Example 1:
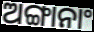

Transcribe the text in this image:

ଅଙ୍ଗାନାଂ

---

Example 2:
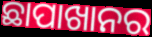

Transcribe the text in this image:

ଛାପାଖାନର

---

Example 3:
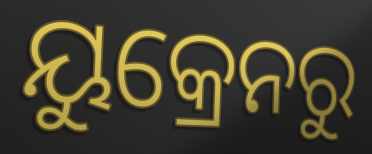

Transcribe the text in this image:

ୟୁକ୍ରେନରୁ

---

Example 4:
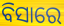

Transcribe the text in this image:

ବିସାରେ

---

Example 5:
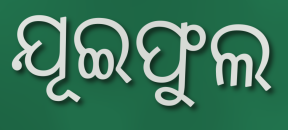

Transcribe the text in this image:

ଯୂଇଫୁଲ